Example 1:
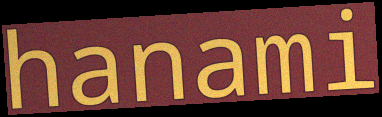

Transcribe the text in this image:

hanami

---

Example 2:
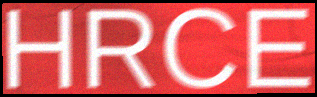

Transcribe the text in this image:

HRCE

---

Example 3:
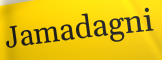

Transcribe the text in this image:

Jamadagni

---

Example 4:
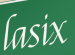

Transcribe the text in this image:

lasix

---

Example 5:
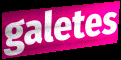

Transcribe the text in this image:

galetes